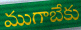
ముగాబేకు